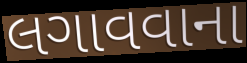
લગાવવાના